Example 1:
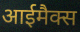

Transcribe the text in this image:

आईमैक्स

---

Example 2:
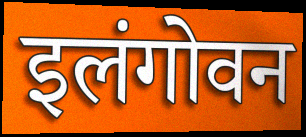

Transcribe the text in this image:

इलंगोवन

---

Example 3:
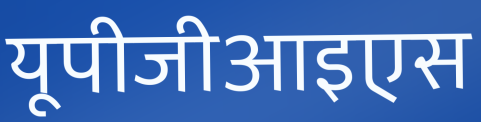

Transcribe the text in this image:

यूपीजीआइएस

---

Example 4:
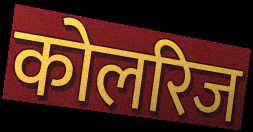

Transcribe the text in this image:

कोलरिज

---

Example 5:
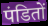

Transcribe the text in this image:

पंडितों